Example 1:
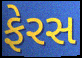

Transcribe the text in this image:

ફેરસ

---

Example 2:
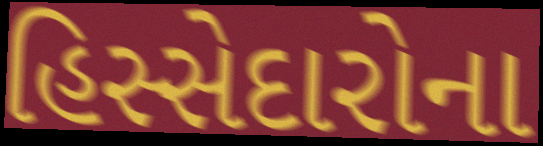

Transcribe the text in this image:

હિસ્સેદારોના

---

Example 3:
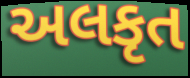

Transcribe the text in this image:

અલકૃત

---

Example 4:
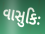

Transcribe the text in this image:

વાસુકિઃ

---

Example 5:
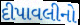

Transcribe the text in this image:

દીપાવલીનો